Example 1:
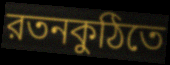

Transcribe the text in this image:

রতনকুঠিতে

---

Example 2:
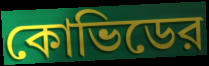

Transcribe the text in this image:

কোভিডের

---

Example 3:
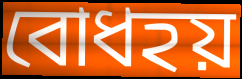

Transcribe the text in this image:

বোধহয়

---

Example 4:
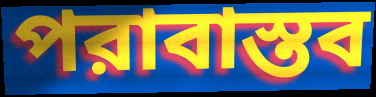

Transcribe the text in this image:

পরাবাস্তব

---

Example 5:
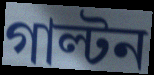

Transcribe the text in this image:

গাল্টন